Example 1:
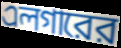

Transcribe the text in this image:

এলগারের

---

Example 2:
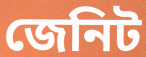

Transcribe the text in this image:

জেনিট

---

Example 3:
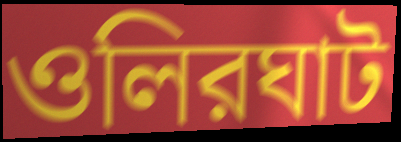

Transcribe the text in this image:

ওলিরঘাট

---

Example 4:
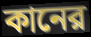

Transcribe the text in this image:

কানের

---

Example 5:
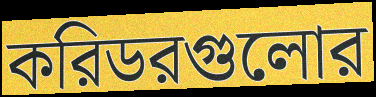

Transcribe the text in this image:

করিডরগুলোর